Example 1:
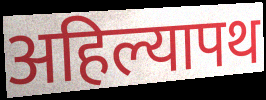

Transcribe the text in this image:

अहिल्यापथ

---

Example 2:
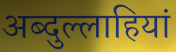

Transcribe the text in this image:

अब्दुल्लाहियां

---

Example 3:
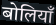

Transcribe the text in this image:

बोलियाँ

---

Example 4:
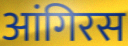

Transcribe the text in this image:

आंगिरस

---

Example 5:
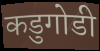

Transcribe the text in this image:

कडुगोडी